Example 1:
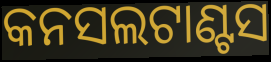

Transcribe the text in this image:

କନସଲଟାଣ୍ଟସ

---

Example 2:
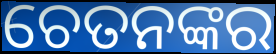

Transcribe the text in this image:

ଚେତନଙ୍କର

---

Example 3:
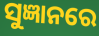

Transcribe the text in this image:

ସୁଜ୍ଞାନରେ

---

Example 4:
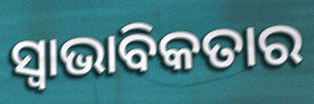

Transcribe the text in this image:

ସ୍ୱାଭାବିକତାର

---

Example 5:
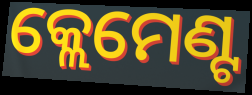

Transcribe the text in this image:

କ୍ଲେମେଣ୍ଟ